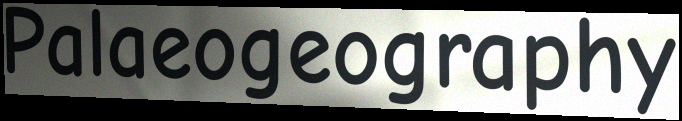
Palaeogeography